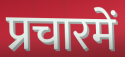
प्रचारमें